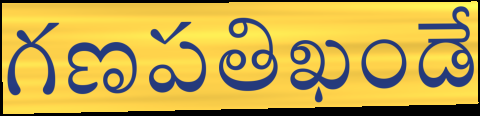
గణపతిఖండే